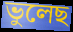
ভুলেছ